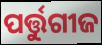
ପର୍ତ୍ତୁଗୀଜ